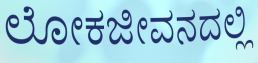
ಲೋಕಜೀವನದಲ್ಲಿ